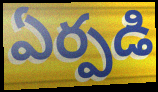
ఏర్పడి